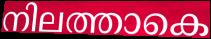
നിലത്താകെ